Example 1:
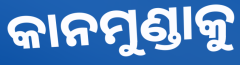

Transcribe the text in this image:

କାନମୁଣ୍ଡାକୁ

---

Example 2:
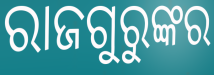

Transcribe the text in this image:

ରାଜଗୁରୁଙ୍କର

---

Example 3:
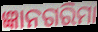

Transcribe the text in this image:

ଜ୍ଞାନଗରିମା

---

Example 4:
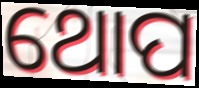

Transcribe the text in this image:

ଥୋପ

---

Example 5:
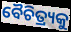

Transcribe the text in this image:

ବୈଚିତ୍ର୍ୟକୁ